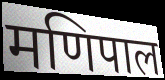
मणिपाल